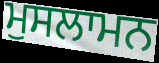
ਮੁਸਲਾਮਨ